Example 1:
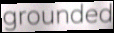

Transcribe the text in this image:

grounded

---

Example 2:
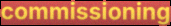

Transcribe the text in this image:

commissioning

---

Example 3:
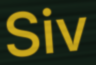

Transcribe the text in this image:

Siv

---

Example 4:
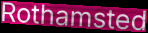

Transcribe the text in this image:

Rothamsted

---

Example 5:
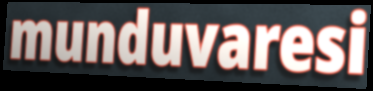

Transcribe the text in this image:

munduvaresi